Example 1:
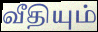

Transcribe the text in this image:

வீதியும்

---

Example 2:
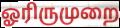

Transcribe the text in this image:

ஓரிருமுறை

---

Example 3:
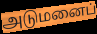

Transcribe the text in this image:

அடுமனைப்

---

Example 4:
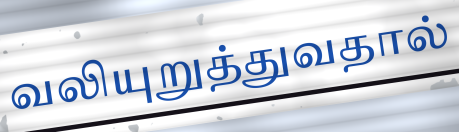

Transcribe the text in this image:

வலியுறுத்துவதால்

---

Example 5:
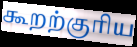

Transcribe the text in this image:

கூறற்குரிய